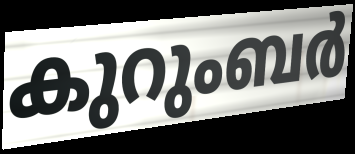
കുറുംബർ